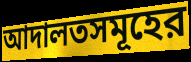
আদালতসমূহের